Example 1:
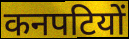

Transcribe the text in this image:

कनपटियों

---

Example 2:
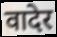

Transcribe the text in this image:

वादेर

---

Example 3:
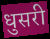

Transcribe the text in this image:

धुसरी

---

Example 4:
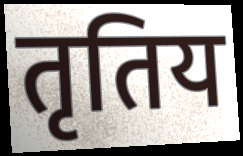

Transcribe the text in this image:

तृतिय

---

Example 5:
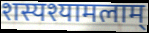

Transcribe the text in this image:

शस्यश्यामलाम्